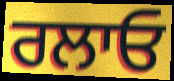
ਰਲਾਓ